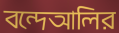
বন্দেআলির